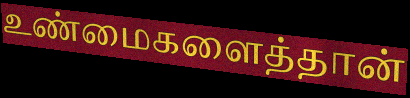
உண்மைகளைத்தான்